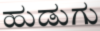
ಹುಡುಗು